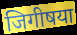
जिगीषया